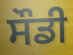
ਸੌਡੀ